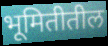
भूमितीतील